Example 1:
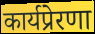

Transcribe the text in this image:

कार्यप्रेरणा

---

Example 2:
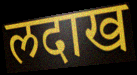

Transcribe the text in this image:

लदाख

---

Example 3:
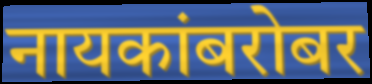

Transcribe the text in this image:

नायकांबरोबर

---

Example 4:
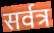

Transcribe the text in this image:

सर्वत्र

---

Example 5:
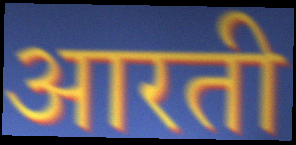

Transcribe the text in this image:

आरती